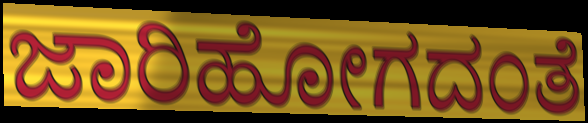
ಜಾರಿಹೋಗದಂತೆ